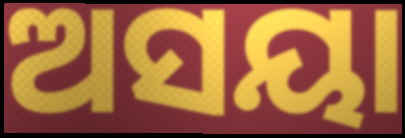
ଅସୟା